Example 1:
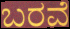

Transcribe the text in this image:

ಬರವೆ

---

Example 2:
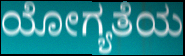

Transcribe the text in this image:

ಯೋಗ್ಯತೆಯ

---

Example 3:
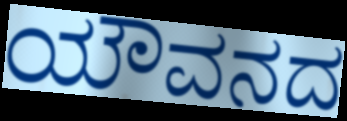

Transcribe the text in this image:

ಯೌವನದ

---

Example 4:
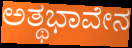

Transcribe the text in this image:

ಅತ್ಥಭಾವೇನ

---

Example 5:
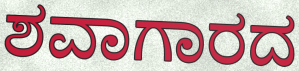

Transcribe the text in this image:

ಶವಾಗಾರದ